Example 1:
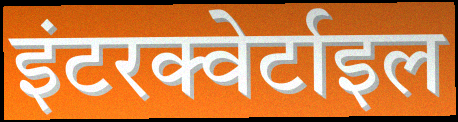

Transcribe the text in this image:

इंटरक्वेर्टाइल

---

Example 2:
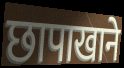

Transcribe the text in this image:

छापाखाने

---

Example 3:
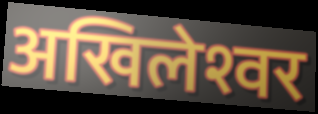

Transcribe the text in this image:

अखिलेश्वर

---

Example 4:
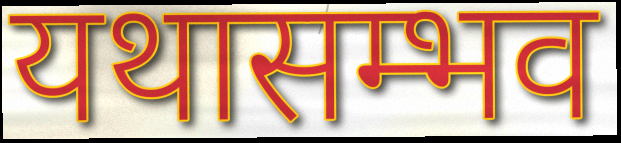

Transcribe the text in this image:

यथासम्भव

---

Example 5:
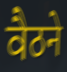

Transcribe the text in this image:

वैठने